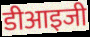
डीआइजी